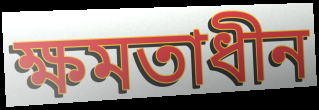
ক্ষমতাধীন